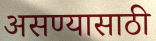
असण्यासाठी